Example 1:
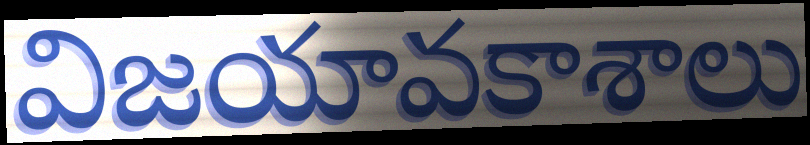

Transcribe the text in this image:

విజయావకాశాలు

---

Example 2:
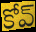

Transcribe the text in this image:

కోవ్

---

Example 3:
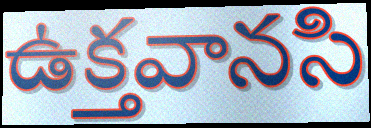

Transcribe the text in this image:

ఉక్తవానసి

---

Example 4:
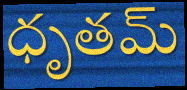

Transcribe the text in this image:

ధృతమ్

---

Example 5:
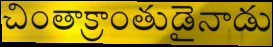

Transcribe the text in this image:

చింతాక్రాంతుడైనాడు